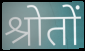
श्रोतों